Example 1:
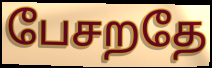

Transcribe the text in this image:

பேசறதே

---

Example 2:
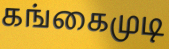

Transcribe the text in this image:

கங்கைமுடி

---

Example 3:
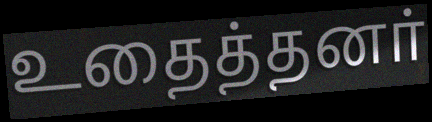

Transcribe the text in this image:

உதைத்தனர்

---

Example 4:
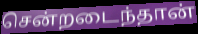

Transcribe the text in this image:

சென்றடைந்தான்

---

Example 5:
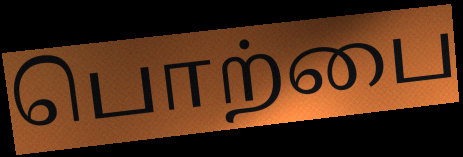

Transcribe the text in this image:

பொற்பை